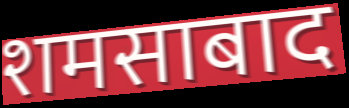
शमसाबाद